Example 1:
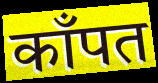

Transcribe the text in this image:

काँपत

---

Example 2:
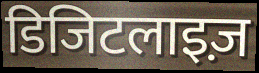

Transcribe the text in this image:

डिजिटलाइज़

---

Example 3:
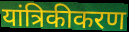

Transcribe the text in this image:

यांत्रिकीकरण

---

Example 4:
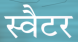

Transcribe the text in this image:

स्वैटर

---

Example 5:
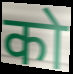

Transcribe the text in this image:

को